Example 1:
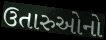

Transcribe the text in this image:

ઉતારુઓનો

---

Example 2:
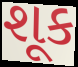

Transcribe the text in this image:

શૂક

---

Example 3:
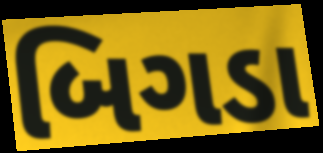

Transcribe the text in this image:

બિગડા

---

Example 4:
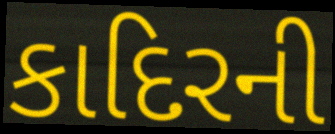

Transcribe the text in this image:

કાદિરની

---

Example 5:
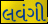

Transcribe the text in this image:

લવંગી